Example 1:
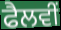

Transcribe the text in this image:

ਫੈਲਵੀਂ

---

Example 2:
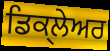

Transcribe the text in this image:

ਡਿਕ੍ਲੇਅਰ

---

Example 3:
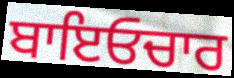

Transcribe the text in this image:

ਬਾਇਓਚਾਰ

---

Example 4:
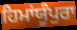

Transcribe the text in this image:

ਹਿਮਾਂਯੂੰਪੁਰਾ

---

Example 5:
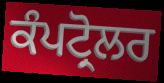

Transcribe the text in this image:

ਕੰਪਟ੍ਰੋਲਰ